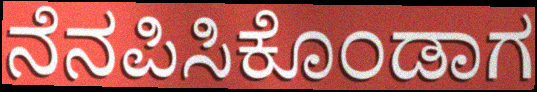
ನೆನಪಿಸಿಕೊಂಡಾಗ